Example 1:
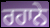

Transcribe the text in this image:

ਰਹਾਨੇ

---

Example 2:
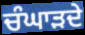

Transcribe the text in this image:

ਚੰਘਾੜਦੇ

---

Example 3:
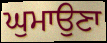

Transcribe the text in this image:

ਘੁਮਾਉਣਾ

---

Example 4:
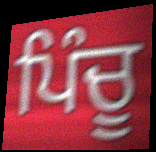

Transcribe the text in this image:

ਪਿੰਚੂ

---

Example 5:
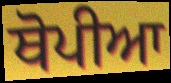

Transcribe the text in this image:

ਥੋਪੀਆ